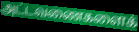
அட்டவணைகளைக்